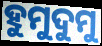
ହୁମୁଦୁମୁ